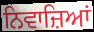
ਨਿਵਾਜ਼ਿਆਂ